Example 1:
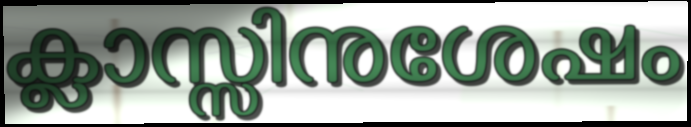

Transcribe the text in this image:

ക്ലാസ്സിനുശേഷം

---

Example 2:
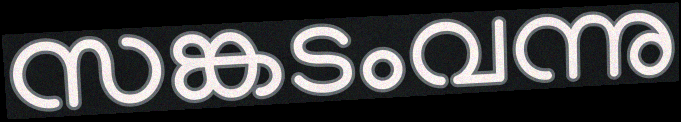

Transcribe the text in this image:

സങ്കടംവന്നു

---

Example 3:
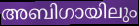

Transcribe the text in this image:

അബിഗായിലും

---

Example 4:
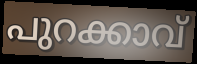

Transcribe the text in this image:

പുറക്കാവ്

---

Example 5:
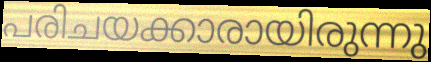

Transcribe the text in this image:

പരിചയക്കാരായിരുന്നു